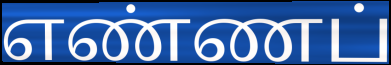
எண்ணப்